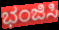
ಭಂಜಿಸಿ